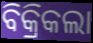
ବିକ୍ରିକଲା